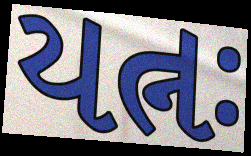
યત્નઃ